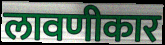
लावणीकार